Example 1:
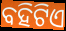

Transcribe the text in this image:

ବହିଟିଏ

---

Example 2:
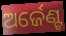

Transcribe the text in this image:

ଅର୍ଜେଣ୍ଟ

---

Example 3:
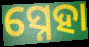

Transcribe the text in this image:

ସ୍ନେହା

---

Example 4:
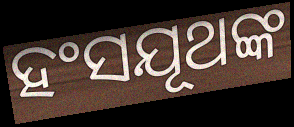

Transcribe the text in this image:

ହଂସଯୂଥଙ୍କ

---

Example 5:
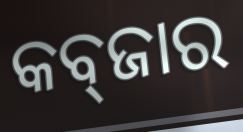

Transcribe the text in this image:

କବ୍‍ଜାର